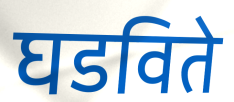
घडविते